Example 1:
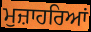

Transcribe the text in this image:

ਮੁਜ਼ਾਹਰਿਆਂ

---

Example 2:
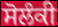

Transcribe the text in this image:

ਸੋਲੰਕੀ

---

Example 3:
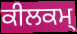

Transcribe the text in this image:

ਕੀਲਕਮ੍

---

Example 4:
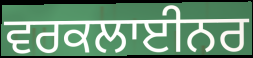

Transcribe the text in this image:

ਵਰਕਲਾਈਨਰ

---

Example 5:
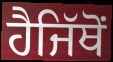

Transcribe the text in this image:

ਹੈਜਿੱਥੋਂ